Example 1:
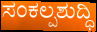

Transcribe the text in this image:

ಸಂಕಲ್ಪಶುದ್ಧಿ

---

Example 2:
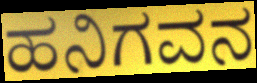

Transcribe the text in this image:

ಹನಿಗವನ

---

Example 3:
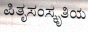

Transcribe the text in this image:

ಪಿತೃಸಂಸ್ಕೃತಿಯ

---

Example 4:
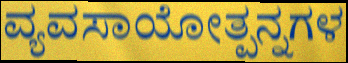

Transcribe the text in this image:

ವ್ಯವಸಾಯೋತ್ಪನ್ನಗಳ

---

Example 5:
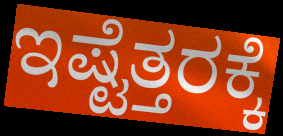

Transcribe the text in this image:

ಇಷ್ಟೆತ್ತರಕ್ಕೆ